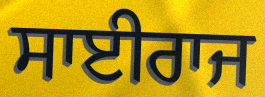
ਸਾਈਰਾਜ